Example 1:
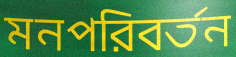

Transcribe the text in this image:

মনপরিবর্তন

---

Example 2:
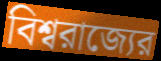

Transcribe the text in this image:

বিশ্বরাজ্যের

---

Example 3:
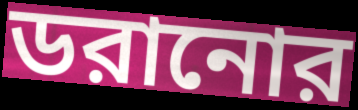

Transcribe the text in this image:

ডরানোর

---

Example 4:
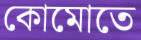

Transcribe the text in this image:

কোমোতে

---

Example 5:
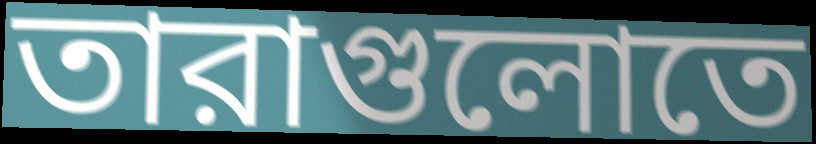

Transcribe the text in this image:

তারাগুলোতে